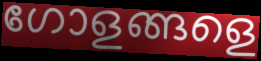
ഗോളങ്ങളെ